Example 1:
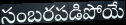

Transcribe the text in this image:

సంబరపడిపోయే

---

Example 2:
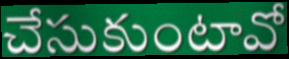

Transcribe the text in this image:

చేసుకుంటావో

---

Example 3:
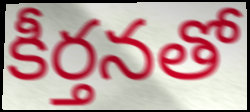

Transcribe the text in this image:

కీర్తనతో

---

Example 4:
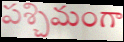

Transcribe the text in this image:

పశ్చిమంగా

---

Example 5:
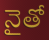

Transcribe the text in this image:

నైతో